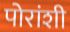
पोरांशी